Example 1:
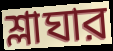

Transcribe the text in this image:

শ্লাঘার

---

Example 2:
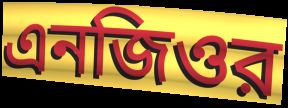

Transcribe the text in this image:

এনজিওর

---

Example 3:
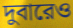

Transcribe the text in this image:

দুবারেও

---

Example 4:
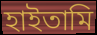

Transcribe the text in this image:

হাইতামি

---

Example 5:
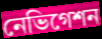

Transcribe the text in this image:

নেভিগেশন